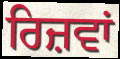
ਰਿਜ਼ਵਾਂ